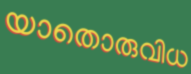
യാതൊരുവിധ